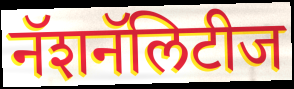
नॅशनॅलिटीज